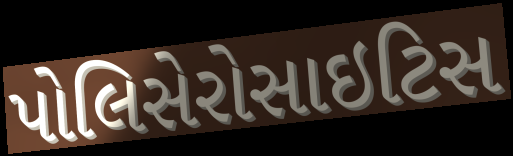
પોલિસેરોસાઇટિસ